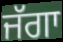
ਜੱਗਾ